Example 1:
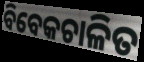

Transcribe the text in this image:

ବିବେକଚାଳିତ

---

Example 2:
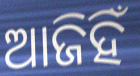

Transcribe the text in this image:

ଆଜିହିଁ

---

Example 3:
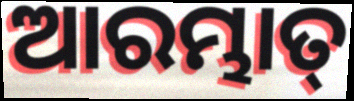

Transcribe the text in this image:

ଆରମ୍ଭାତ୍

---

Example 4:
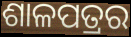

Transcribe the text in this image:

ଶାଳପତ୍ରର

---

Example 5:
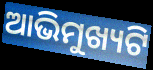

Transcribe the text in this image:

ଆଭିମୁଖ୍ୟଟି